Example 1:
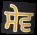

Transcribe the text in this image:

ਸੇਵ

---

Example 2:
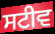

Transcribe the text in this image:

ਸਟੀਵ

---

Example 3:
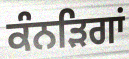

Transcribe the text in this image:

ਕੰਨੜਿਗਾਂ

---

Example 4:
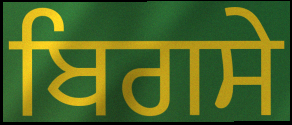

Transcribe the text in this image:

ਬਿਗਸੇ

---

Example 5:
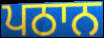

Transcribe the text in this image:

ਪਠਾਨ